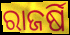
ରାଜର୍ଷି